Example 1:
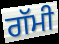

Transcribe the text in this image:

ਗੱਮੀ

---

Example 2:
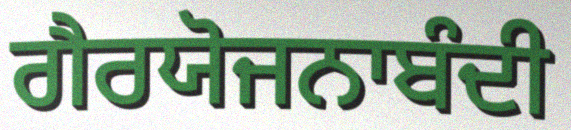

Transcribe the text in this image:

ਗੈਰਯੋਜਨਾਬੰਦੀ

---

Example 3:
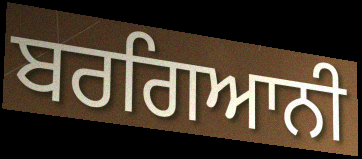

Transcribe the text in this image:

ਬਰਗਿਆਨੀ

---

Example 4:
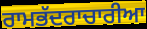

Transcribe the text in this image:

ਰਾਮਭੱਦਰਾਚਾਰੀਆ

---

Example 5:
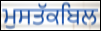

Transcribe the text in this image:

ਮੁਸਤੱਕਬਿਲ